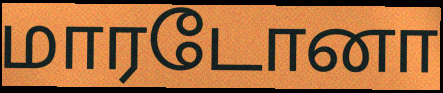
மாரடோனா